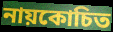
নায়কোচিত